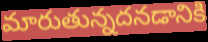
మారుతున్నదనడానికి